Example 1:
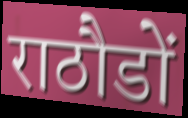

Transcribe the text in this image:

राठौडों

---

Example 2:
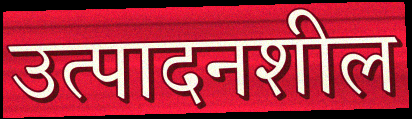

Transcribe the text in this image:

उत्पादनशील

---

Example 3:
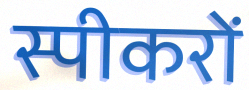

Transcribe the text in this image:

स्पीकरों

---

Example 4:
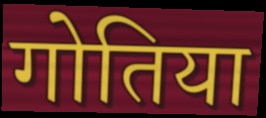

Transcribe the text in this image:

गोतिया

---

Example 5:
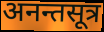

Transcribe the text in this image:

अनन्तसूत्र